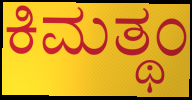
ಕಿಮತ್ಥಂ